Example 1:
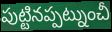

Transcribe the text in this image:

పుట్టినప్పట్నుంచీ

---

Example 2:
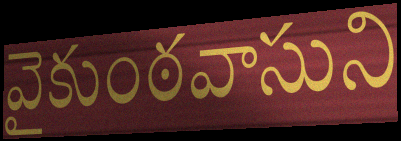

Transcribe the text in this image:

వైకుంఠవాసుని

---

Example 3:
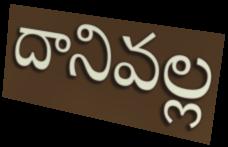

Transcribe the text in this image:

దానివల్ల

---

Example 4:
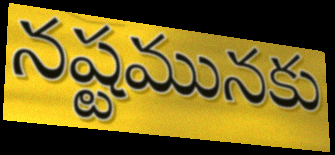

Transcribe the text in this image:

నష్టమునకు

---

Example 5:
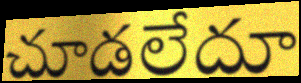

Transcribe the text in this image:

చూడలేదూ